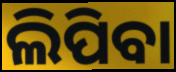
ଲିପିବା